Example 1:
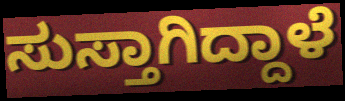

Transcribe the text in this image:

ಸುಸ್ತಾಗಿದ್ದಾಳೆ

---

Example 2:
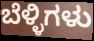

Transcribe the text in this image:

ಬೆಳ್ಳಿಗಳು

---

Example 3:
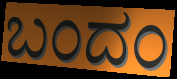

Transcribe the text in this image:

ಬಂದಂ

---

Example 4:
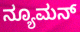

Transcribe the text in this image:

ನ್ಯೂಮನ್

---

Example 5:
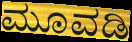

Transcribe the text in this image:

ಮೂವಡಿ